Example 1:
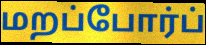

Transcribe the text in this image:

மறப்போர்ப்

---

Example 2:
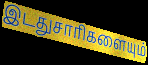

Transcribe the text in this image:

இடதுசாரிகளையும்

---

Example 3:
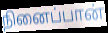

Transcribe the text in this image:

நினைப்பான்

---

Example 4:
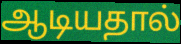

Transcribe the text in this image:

ஆடியதால்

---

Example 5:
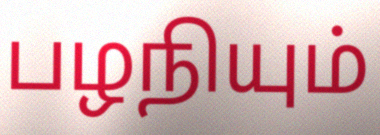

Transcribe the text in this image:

பழநியும்